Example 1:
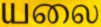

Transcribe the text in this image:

யலை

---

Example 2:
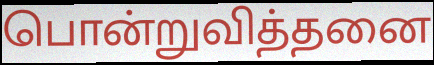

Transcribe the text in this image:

பொன்றுவித்தனை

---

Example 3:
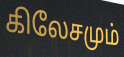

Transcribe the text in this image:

கிலேசமும்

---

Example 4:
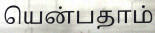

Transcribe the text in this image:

யென்பதாம்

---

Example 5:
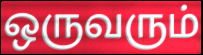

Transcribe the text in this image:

ஒருவரும்